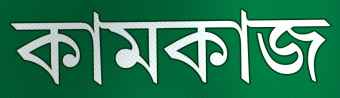
কামকাজ